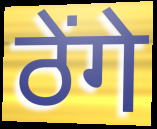
ठेंगे